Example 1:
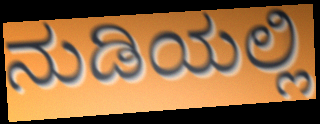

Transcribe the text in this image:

ನುಡಿಯಲ್ಲಿ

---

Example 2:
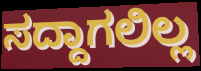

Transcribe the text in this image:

ಸದ್ದಾಗಲಿಲ್ಲ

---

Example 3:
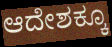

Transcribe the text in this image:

ಆದೇಶಕ್ಕೂ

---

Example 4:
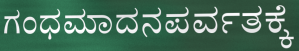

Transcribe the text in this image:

ಗಂಧಮಾದನಪರ್ವತಕ್ಕೆ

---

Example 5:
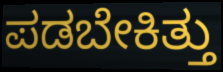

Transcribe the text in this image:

ಪಡಬೇಕಿತ್ತು